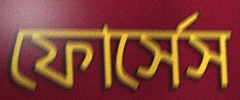
ফোর্সেস